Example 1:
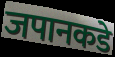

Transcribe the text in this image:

जपानकडे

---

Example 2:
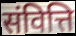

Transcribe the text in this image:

संवित्ति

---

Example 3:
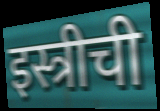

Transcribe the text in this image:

इस्त्रीची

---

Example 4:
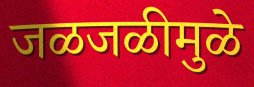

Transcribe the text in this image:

जळजळीमुळे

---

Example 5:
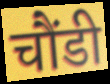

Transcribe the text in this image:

चौंडी